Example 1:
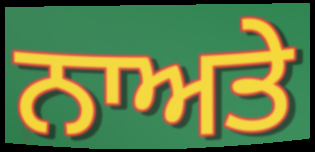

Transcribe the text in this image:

ਨਾਅਤੇ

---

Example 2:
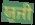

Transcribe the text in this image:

ਯੁਜੀ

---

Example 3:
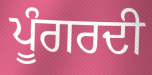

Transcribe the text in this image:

ਪੂੰਗਰਦੀ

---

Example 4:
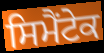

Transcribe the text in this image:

ਸਿਮੈਂਟੇਕ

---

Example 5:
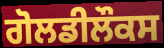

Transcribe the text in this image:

ਗੋਲਡੀਲੌਕਸ